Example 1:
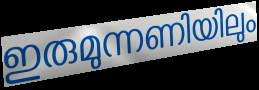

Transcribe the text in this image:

ഇരുമുന്നണിയിലും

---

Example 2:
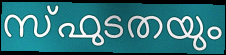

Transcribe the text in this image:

സ്ഫുടതയും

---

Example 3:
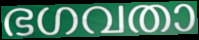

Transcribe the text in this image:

ഭഗവതാ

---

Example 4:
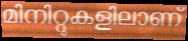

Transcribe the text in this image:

മിനിറ്റുകളിലാണ്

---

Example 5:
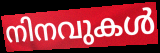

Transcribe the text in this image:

നിനവുകൾ